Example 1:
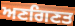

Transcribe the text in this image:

ਅਣਗਿਣਤ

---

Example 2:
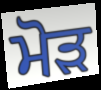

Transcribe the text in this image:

ਮੋੜ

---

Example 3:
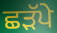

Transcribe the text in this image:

ਛੜੱਪੇ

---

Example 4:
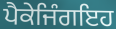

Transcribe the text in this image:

ਪੈਕੇਜਿੰਗਇਹ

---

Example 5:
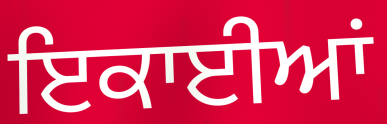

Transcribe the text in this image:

ਇਕਾਈਆਂ